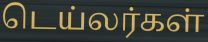
டெய்லர்கள்